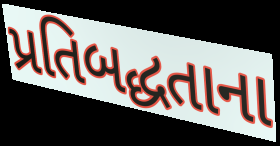
પ્રતિબદ્ધતાના